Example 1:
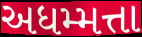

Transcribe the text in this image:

અધમ્મત્તા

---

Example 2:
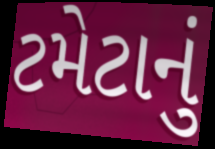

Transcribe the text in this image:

ટમેટાનું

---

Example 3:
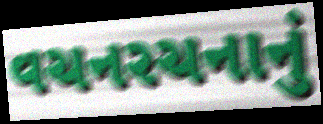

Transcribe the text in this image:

વચનરચનાનું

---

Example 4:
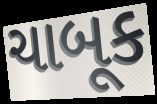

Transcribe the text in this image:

ચાબૂક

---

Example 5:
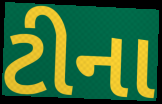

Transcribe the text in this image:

ટીના